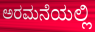
ಅರಮನೆಯಲ್ಲಿ